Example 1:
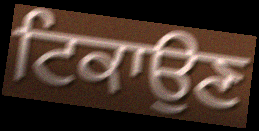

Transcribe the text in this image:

ਟਿਕਾਉਣ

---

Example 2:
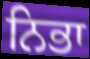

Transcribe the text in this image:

ਨਿਭਾ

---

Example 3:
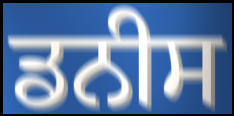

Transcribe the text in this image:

ਡਨੀਸ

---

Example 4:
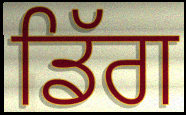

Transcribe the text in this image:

ਡਿੱਗ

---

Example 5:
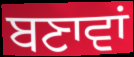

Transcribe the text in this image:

ਬਣਾਵਾਂ